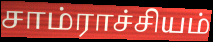
சாம்ராச்சியம்